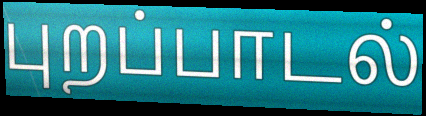
புறப்பாடல்